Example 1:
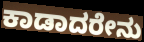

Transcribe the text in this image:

ಕಾಡಾದರೇನು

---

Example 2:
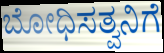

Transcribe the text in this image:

ಬೋಧಿಸತ್ವನಿಗೆ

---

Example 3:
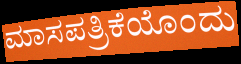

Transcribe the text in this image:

ಮಾಸಪತ್ರಿಕೆಯೊಂದು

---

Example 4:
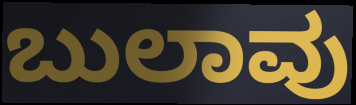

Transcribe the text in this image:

ಬುಲಾವು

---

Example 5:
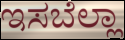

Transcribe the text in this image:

ಇಸಬೆಲ್ಲಾ